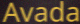
Avada